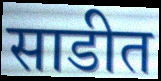
साडीत